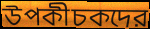
উপকীচকদের